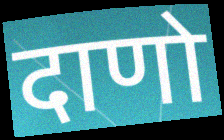
दाणो